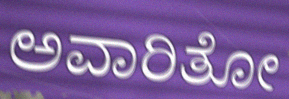
ಅವಾರಿತೋ